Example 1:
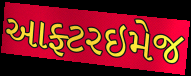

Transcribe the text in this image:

આફ્ટરઇમેજ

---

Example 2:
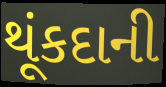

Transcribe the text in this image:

થૂંકદાની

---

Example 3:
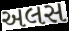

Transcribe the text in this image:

અલસ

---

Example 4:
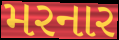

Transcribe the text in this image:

મરનાર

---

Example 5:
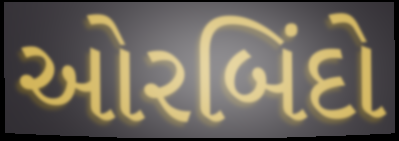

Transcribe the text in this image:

ઓરબિંદો